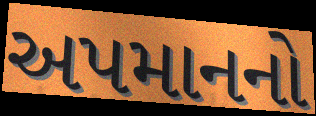
અપમાનનો